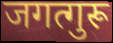
जगत्गुरू